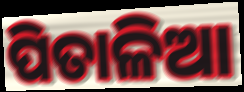
ପିତାଳିଆ